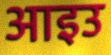
आइउ